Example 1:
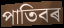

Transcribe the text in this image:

পাতিবৰ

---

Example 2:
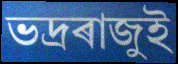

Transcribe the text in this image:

ভদ্ৰৰাজুই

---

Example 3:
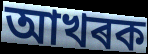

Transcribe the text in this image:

আখৰক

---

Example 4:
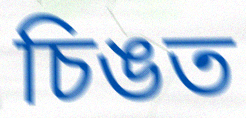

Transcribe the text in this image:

চিঙত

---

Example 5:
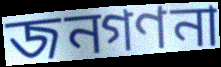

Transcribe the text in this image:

জনগণনা